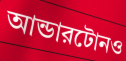
আন্ডারটোনও